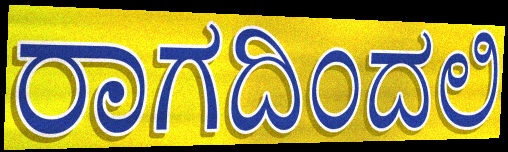
ರಾಗದಿಂದಲಿ